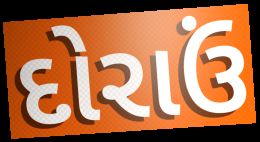
દોરાઉં